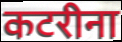
कटरीना